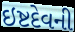
ઇષ્ટદેવની